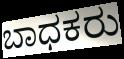
ಬಾಧಕರು